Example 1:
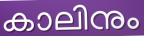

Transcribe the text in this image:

കാലിനും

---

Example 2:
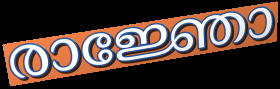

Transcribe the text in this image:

രാജ്ഞോ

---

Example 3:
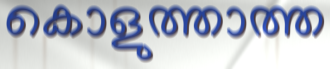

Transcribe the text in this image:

കൊളുത്താത്ത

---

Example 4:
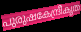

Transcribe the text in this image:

പുരുഷകേന്ദ്രീകൃത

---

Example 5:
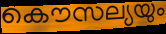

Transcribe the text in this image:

കൌസല്യയും